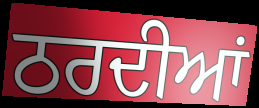
ਠਰਦੀਆਂ